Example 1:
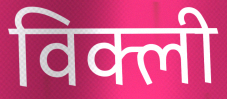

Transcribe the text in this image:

विक्ली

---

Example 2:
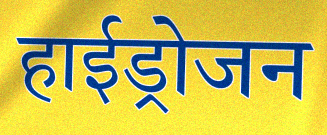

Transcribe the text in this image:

हाईड्रोजन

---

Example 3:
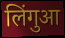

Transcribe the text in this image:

लिंगुआ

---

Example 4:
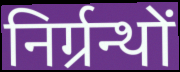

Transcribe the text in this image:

निर्ग्रन्थों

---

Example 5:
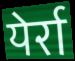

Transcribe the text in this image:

येर्रा